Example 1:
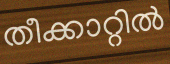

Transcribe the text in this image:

തീക്കാറ്റിൽ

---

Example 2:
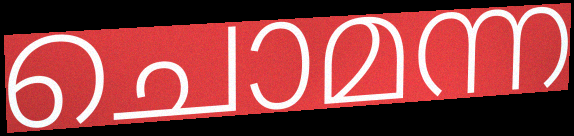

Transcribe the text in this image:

ചൊമന്ന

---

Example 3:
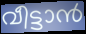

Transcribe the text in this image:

വീട്ടാൻ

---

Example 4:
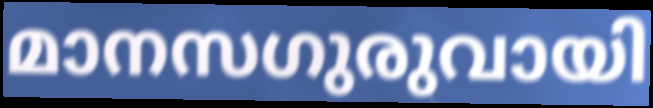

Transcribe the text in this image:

മാനസഗുരുവായി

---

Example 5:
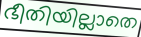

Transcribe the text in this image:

ഭീതിയില്ലാതെ